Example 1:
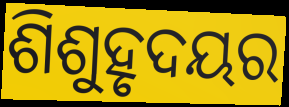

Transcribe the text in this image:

ଶିଶୁହୃଦୟର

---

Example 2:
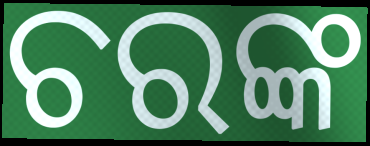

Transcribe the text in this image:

ଚରଙ୍କ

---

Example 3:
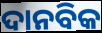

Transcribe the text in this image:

ଦାନବିକ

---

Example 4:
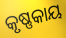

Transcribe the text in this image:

କୃଷ୍ଣକାୟ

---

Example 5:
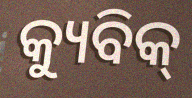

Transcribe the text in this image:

କ୍ୟୁବିକ୍